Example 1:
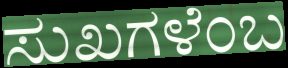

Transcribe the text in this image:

ಸುಖಗಳೆಂಬ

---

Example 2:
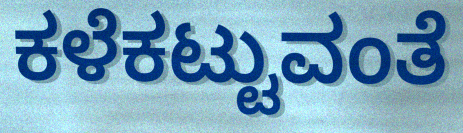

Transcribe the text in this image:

ಕಳೆಕಟ್ಟುವಂತೆ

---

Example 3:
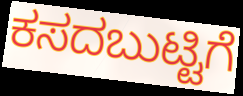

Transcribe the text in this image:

ಕಸದಬುಟ್ಟಿಗೆ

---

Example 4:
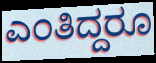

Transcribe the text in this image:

ಎಂತಿದ್ದರೂ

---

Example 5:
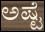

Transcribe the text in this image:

ಅಷ್ಟೆ